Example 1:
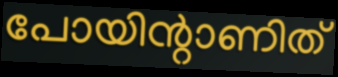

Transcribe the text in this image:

പോയിന്റാണിത്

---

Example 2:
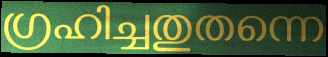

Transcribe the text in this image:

ഗ്രഹിച്ചതുതന്നെ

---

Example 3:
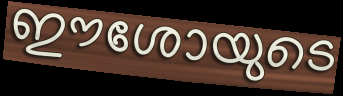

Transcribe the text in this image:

ഈശോയുടെ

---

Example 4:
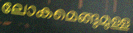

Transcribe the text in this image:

ലോകമെങ്ങുമുള്ള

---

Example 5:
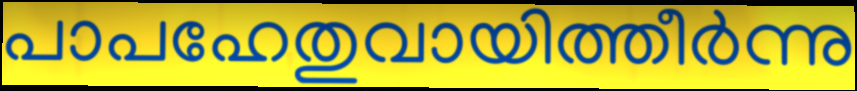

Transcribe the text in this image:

പാപഹേതുവായിത്തീർന്നു